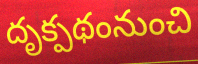
దృక్పథంనుంచి